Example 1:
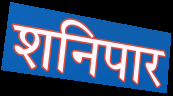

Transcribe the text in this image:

शनिपार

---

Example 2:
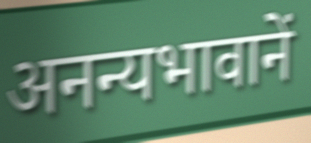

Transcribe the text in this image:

अनन्यभावानें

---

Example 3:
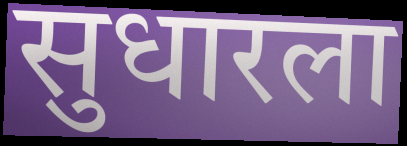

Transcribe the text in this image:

सुधारला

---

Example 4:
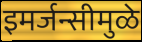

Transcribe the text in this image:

इमर्जन्सीमुळे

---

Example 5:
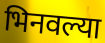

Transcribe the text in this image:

भिनवल्या